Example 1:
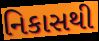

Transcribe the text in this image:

નિકાસથી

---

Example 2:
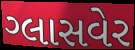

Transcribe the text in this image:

ગ્લાસવેર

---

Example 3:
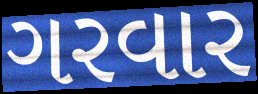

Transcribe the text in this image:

ગરવાર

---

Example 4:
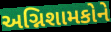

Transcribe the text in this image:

અગ્નિશામકોને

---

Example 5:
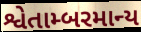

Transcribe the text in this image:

શ્વેતામ્બરમાન્ય